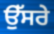
ਉੱਸਰੇ